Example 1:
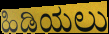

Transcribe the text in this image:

ಹಿಡಿಯಲು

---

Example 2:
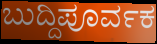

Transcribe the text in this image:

ಬುದ್ದಿಪೂರ್ವಕ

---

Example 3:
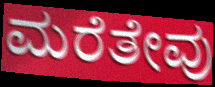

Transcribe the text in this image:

ಮರೆತೇವು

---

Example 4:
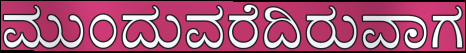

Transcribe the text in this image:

ಮುಂದುವರೆದಿರುವಾಗ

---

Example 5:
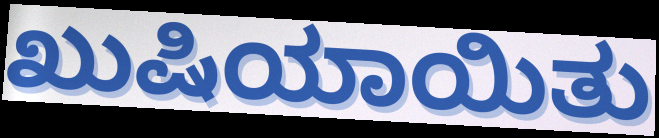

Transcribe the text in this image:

ಖುಷಿಯಾಯಿತು